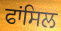
ਫਾਂਸਿਲ